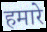
हमारे